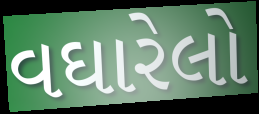
વઘારેલો